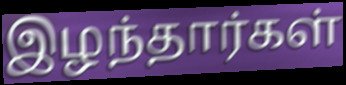
இழந்தார்கள்